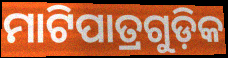
ମାଟିପାତ୍ରଗୁଡ଼ିକ